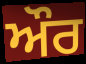
ਔਰ